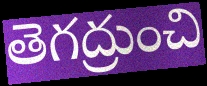
తెగద్రుంచి